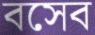
বসেব